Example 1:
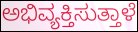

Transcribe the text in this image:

ಅಭಿವ್ಯಕ್ತಿಸುತ್ತಾಳೆ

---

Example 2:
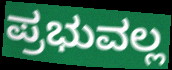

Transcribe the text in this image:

ಪ್ರಭುವಲ್ಲ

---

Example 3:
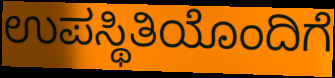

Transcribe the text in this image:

ಉಪಸ್ಥಿತಿಯೊಂದಿಗೆ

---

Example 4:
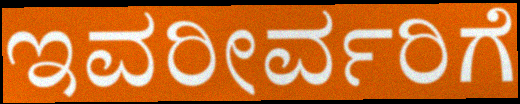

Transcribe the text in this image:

ಇವರೀರ್ವರಿಗೆ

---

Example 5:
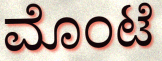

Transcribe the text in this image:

ಮೊಂಟೆ